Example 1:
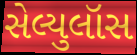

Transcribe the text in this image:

સેલ્યુલૉસ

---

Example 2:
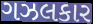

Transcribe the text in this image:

ગઝલકાર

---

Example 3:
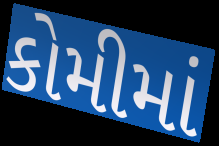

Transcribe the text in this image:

કોમીમાં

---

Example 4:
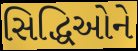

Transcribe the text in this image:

સિદ્ધિઓને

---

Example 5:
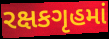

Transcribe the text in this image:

રક્ષકગૃહમાં